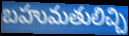
బహుమతులిచ్చి